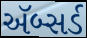
ઍબ્સર્ડ